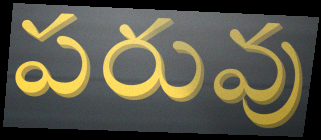
పరువు